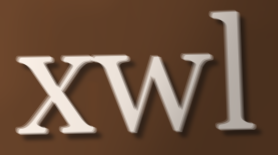
xwl